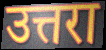
उत्तरा